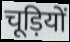
चूड़ियों